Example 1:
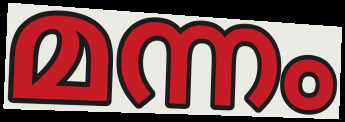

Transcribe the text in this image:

മന്നം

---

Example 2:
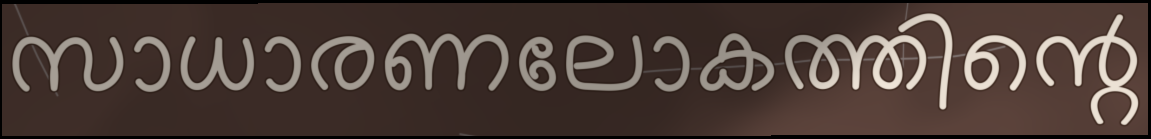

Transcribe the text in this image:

സാധാരണലോകത്തിന്റെ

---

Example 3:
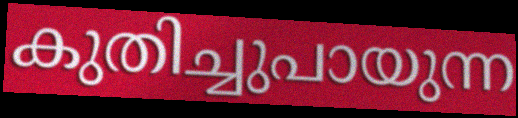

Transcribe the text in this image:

കുതിച്ചുപായുന്ന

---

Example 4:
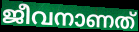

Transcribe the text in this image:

ജീവനാണത്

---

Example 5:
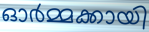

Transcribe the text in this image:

ഓർമ്മക്കായി